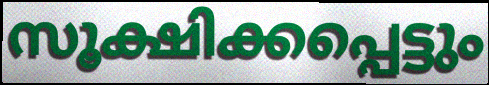
സൂക്ഷിക്കപ്പെട്ടും